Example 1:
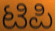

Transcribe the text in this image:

ಟಿಪಿ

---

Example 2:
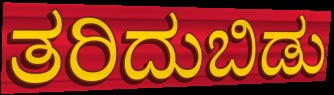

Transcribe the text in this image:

ತರಿದುಬಿಡು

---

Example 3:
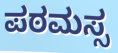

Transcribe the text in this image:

ಪಠಮಸ್ಸ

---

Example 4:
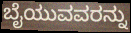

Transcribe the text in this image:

ಬೈಯುವವರನ್ನು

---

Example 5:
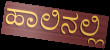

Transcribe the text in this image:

ಹಾಲಿನಲ್ಲಿ